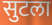
सुटला